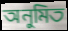
অনুমিত